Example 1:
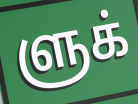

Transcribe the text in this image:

ளுக்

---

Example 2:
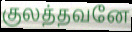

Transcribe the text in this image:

குலத்தவனே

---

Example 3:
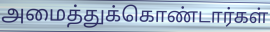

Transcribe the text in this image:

அமைத்துக்கொண்டார்கள்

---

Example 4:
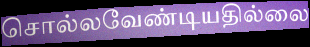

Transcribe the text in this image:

சொல்லவேண்டியதில்லை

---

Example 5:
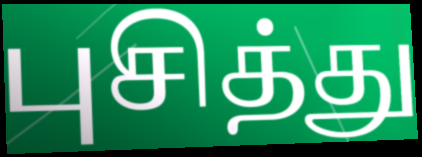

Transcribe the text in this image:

புசித்து